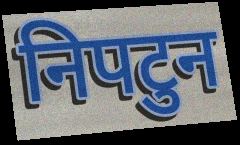
निपटुन